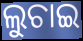
ଲୁଚାଇ